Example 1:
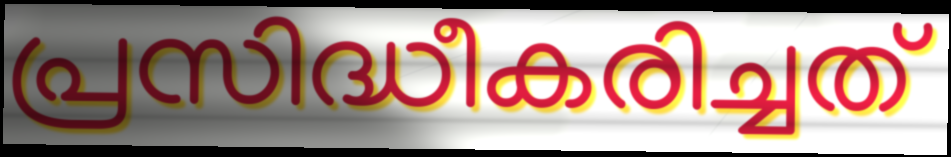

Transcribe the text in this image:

പ്രസിദ്ധീകരിച്ചത്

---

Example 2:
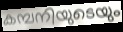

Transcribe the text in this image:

കമ്പനിയുടെയും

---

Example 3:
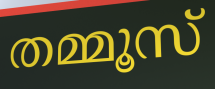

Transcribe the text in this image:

തമ്മൂസ്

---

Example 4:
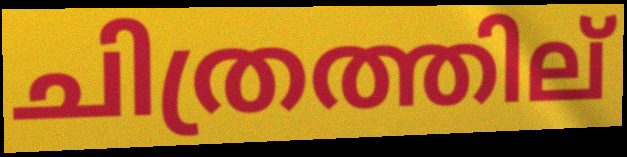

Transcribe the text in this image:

ചിത്രത്തില്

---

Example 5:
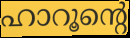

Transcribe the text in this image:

ഹാറൂന്റെ